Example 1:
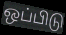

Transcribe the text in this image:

ஒப்பிடு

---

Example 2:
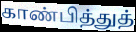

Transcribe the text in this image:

காண்பித்துத்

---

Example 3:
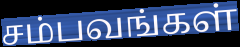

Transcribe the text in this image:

சம்பவங்கள்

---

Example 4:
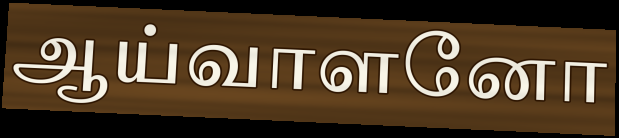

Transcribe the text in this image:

ஆய்வாளனோ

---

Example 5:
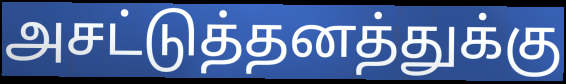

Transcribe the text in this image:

அசட்டுத்தனத்துக்கு